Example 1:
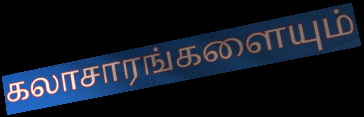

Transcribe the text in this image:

கலாசாரங்களையும்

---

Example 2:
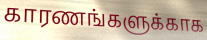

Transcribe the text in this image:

காரணங்களுக்காக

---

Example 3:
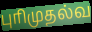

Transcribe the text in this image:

புரிமுதல்வ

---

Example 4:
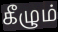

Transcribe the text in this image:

கீழும்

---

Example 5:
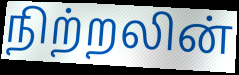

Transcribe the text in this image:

நிற்றலின்